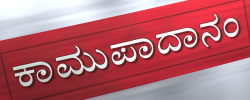
ಕಾಮುಪಾದಾನಂ